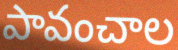
పావంచాల